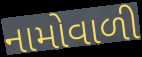
નામોવાળી